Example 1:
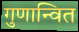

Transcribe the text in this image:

गुणान्वित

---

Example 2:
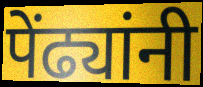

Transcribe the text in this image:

पेंढ्यांनी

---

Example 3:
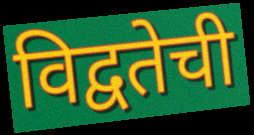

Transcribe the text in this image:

विद्वतेची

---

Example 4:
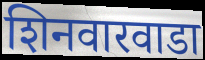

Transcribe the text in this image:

शिनवारवाडा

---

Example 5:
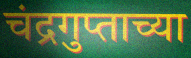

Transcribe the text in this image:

चंद्रगुप्ताच्या